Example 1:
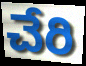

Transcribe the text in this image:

చేరి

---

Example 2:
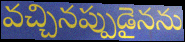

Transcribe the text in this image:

వచ్చినప్పుడైనను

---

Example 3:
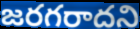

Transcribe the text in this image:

జరగరాదని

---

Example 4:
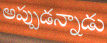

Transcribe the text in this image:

అప్పుడన్నాడు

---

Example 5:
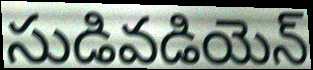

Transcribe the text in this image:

సుడివడియెన్